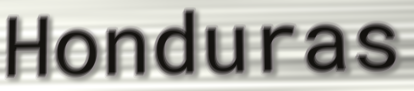
Honduras